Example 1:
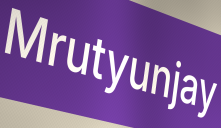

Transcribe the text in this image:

Mrutyunjay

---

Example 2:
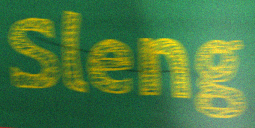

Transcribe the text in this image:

Sleng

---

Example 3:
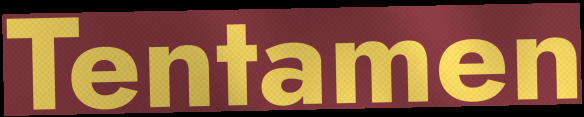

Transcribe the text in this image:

Tentamen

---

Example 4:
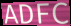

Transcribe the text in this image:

ADFC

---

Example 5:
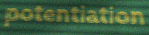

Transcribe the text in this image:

potentiation